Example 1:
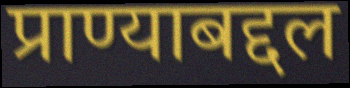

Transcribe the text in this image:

प्राण्याबद्दल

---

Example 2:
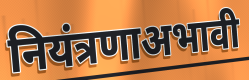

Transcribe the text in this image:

नियंत्रणाअभावी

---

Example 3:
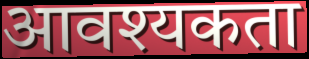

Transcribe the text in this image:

आवश्‍यकता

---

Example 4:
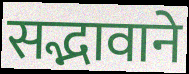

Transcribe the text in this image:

सद्भावाने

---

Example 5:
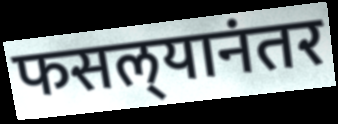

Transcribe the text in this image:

फसल्यानंतर